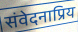
संवेदनाप्रिय